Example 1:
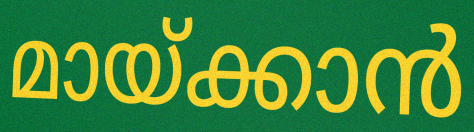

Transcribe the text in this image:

മായ്ക്കാൻ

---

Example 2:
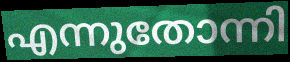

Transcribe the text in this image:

എന്നുതോന്നി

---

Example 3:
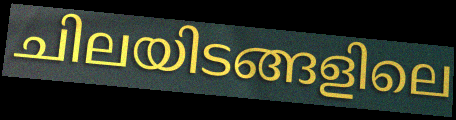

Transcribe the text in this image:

ചിലയിടങ്ങളിലെ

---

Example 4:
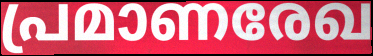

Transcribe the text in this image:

പ്രമാണരേഖ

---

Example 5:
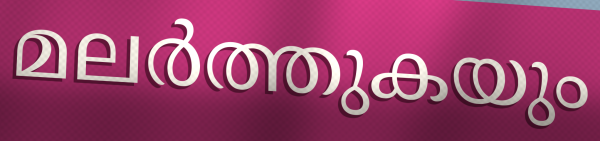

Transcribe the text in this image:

മലർത്തുകയും